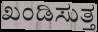
ಖಂಡಿಸುತ್ತ